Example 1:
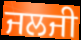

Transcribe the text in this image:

ਜਲਜੀ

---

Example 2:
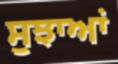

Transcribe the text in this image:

ਸੁਝਾਆਂ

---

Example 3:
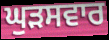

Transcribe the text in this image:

ਘੁੜਸਵਾਰ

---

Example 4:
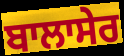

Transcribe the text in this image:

ਬਾਲਾਸੇਰ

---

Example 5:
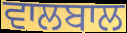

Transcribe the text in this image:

ਵਾਲਬਾਲ